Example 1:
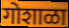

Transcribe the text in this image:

गोशाळा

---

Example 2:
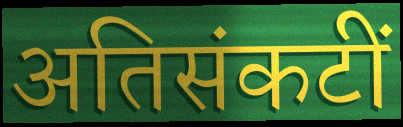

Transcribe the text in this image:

अतिसंकटीं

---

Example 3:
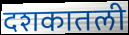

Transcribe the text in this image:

दशकातली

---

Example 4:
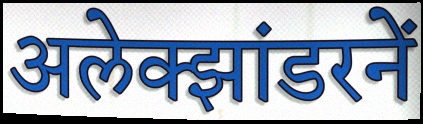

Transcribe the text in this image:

अलेक्झांडरनें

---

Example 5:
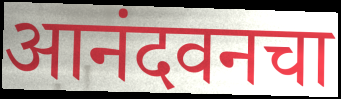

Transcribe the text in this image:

आनंदवनचा